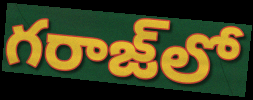
గరాజ్‌లో